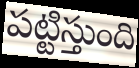
పట్టిస్తుంది